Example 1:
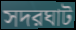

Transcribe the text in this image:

সদরঘাট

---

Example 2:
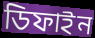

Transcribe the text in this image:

ডিফাইন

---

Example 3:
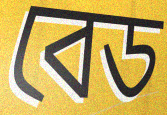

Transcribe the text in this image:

বেড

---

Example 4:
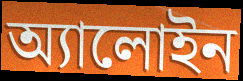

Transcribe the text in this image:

অ্যালোইন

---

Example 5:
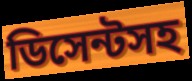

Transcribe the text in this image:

ডিসেন্টসহ